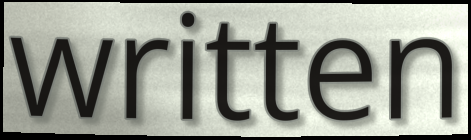
written